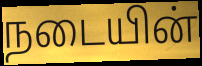
நடையின்